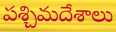
పశ్చిమదేశాలు